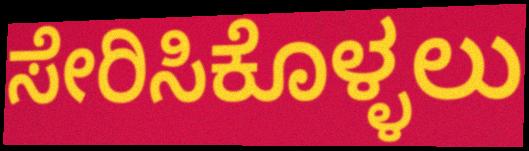
ಸೇರಿಸಿಕೊಳ್ಳಲು